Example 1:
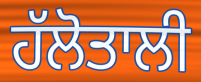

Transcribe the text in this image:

ਹੱਲੋਤਾਲੀ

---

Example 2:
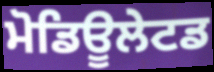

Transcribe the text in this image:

ਮੋਡਿਊਲੇਟਡ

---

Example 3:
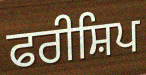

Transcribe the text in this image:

ਫਰੀਸ਼ਿਪ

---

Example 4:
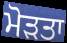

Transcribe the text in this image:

ਮੋੜਤਾ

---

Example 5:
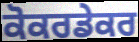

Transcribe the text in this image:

ਕੋਕਰਡੇਕਰ